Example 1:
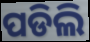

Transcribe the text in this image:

ପଡିଲି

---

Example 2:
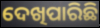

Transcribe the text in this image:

ଦେଖିପାରିଛି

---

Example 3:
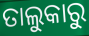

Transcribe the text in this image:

ତାଲୁକାରୁ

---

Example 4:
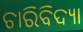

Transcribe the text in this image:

ଚାରିବିଦ୍ୟା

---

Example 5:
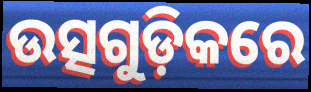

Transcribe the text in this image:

ଉତ୍ସଗୁଡ଼ିକରେ